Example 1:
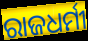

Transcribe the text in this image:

ରାଜଧର୍ମୀ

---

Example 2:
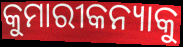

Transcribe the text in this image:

କୁମାରୀକନ୍ୟାକୁ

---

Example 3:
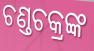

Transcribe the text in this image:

ଚଣ୍ଡଚକ୍ରଙ୍କ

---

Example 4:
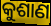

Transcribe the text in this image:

କୁଶାଣ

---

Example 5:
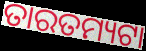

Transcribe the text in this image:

ତାରତମ୍ୟଟା